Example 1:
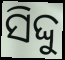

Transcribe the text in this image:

ସିଦ୍ଦୁ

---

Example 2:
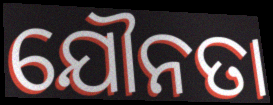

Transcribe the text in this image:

ଯୌନତା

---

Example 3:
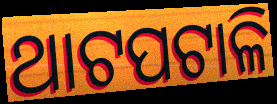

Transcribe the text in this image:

ଥାଟପଟାଳି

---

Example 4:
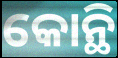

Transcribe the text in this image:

କୋନ୍ଥି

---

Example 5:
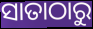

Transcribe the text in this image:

ସାତାଠାରୁ